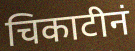
चिकाटीनं